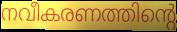
നവീകരണത്തിന്റെ